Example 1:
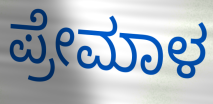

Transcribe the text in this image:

ಪ್ರೇಮಾಳ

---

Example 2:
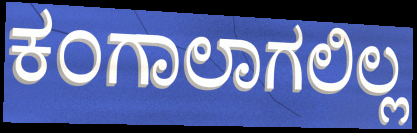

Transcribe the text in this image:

ಕಂಗಾಲಾಗಲಿಲ್ಲ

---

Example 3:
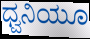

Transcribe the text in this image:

ಧ್ವನಿಯೂ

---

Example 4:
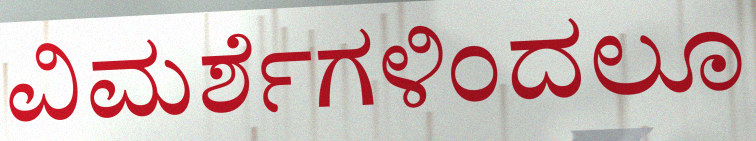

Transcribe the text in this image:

ವಿಮರ್ಶೆಗಳಿಂದಲೂ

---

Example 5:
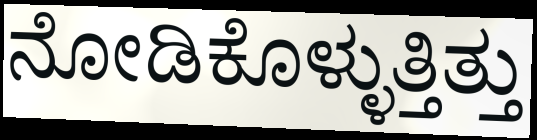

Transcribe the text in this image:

ನೋಡಿಕೊಳ್ಳುತ್ತಿತ್ತು